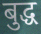
बुद्ध